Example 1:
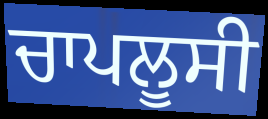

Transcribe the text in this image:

ਚਾਪਲੂਸੀ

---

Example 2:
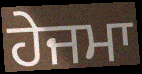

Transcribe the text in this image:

ਹੇਜਮਾ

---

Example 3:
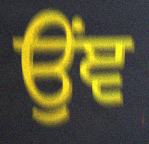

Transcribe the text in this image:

ਉਂਞ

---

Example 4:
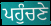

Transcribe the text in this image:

ਪਹੁੰਚਣੇ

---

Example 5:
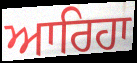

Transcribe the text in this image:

ਆਰਿਹਾ